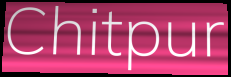
Chitpur